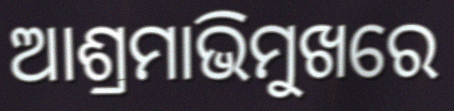
ଆଶ୍ରମାଭିମୁଖରେ